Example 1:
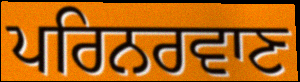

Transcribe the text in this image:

ਪਰਿਨਰਵਾਣ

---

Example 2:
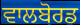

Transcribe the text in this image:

ਵਾਲਬੋਰਡ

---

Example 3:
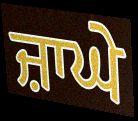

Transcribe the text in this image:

ਜ਼ਾਘੇ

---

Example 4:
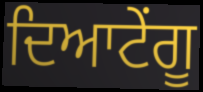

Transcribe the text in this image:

ਦਿਆਟੇਂਗੂ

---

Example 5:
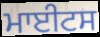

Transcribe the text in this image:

ਮਾਈਟਸ